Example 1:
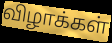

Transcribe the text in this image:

விழாக்கள்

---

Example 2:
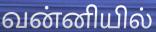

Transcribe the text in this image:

வன்னியில்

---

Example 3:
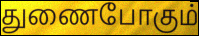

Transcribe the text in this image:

துணைபோகும்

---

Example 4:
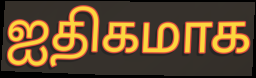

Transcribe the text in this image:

ஐதிகமாக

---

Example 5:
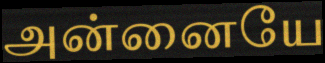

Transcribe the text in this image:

அன்னையே